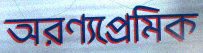
অরণ্যপ্রেমিক